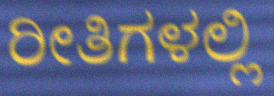
ರೀತಿಗಳಲ್ಲಿ